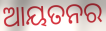
ଆୟତନର